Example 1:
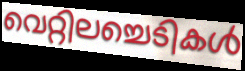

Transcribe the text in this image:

വെറ്റിലച്ചെടികൾ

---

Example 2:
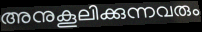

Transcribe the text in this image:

അനുകൂലിക്കുന്നവരും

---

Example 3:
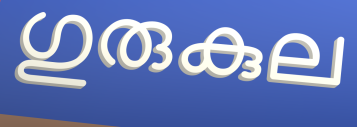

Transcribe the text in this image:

ഗുരുകുല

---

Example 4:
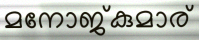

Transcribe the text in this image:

മനോജ്കുമാര്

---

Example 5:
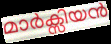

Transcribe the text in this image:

മാർക്സിയൻ